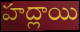
హద్లాయి